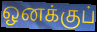
ஒனக்குப்